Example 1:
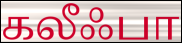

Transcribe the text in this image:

கலீஃபா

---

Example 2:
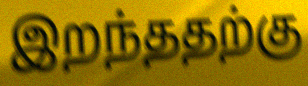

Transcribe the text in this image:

இறந்ததற்கு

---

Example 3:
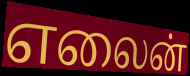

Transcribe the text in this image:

எலைன்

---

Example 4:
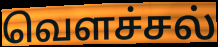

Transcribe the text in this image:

வெளச்சல்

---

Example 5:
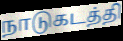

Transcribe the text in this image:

நாடுகடத்தி